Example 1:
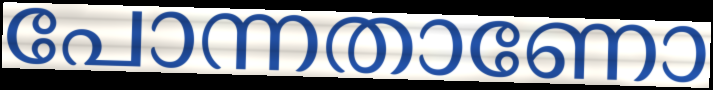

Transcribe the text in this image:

പോന്നതാണോ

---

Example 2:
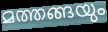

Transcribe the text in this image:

മത്തങ്ങയും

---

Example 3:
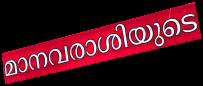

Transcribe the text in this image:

മാനവരാശിയുടെ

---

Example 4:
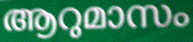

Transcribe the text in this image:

ആറുമാസം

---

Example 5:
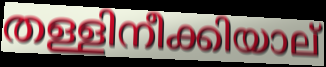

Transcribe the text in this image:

തള്ളിനീക്കിയാല്